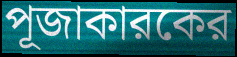
পূজাকারকের